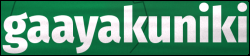
gaayakuniki